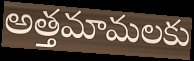
అత్తమామలకు